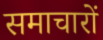
समाचारों